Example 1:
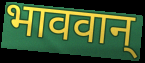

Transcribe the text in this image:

भाववान्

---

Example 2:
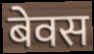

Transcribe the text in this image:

बेवस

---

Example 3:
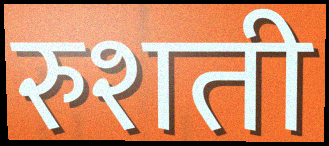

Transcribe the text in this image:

रुशती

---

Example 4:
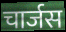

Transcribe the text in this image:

चार्जस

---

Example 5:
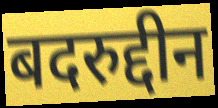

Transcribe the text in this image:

बदरुद्दीन